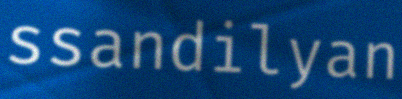
ssandilyan